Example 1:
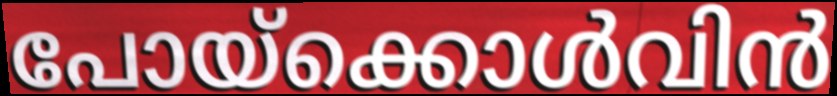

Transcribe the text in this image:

പോയ്ക്കൊൾവിൻ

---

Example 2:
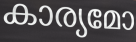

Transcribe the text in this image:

കാര്യമോ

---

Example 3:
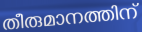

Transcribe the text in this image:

തീരുമാനത്തിന്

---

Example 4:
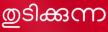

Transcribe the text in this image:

തുടിക്കുന്ന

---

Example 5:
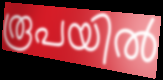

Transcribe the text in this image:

രൂപയിൽ